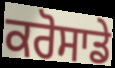
ਕਰੋਸਾਡੇ